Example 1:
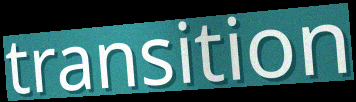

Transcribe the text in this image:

transition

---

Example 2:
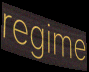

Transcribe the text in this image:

regime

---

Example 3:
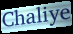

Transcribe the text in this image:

Chaliye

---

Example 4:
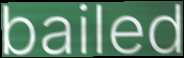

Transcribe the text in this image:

bailed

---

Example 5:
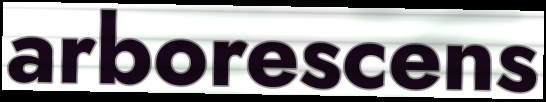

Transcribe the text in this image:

arborescens